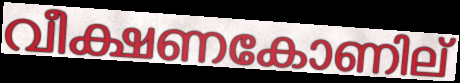
വീക്ഷണകോണില്